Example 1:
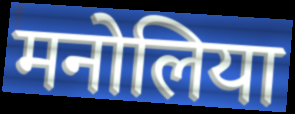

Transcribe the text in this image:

मनोलिया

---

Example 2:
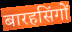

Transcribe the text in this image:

बारहसिंगों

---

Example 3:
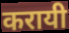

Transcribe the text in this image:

करायी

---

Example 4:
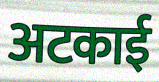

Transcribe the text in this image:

अटकाई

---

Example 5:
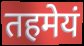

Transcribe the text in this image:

तहमेयं